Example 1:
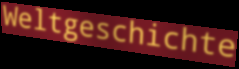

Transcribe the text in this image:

Weltgeschichte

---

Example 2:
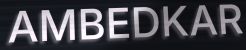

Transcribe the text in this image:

AMBEDKAR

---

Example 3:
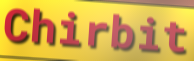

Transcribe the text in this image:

Chirbit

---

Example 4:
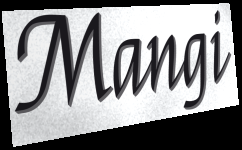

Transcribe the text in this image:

Mangi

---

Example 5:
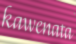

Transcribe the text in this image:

kawenata